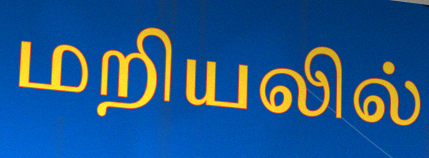
மறியலில்